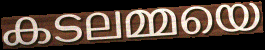
കടലമ്മയെ